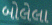
બોલેલા